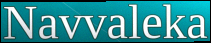
Navvaleka